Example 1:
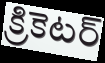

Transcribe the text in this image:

క్రికెటర్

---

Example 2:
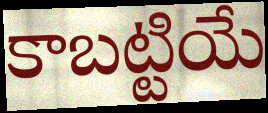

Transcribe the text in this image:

కాబట్టియే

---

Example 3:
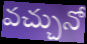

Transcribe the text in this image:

వచ్చునో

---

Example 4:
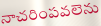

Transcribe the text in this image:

నాచరింపవలెను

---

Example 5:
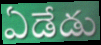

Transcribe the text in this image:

ఏడేడు